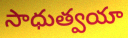
సాధుత్వయా